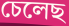
চেলেছ